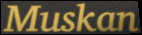
Muskan